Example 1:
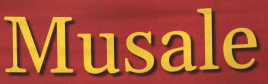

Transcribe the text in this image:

Musale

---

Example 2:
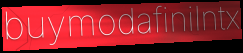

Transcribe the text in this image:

buymodafinilntx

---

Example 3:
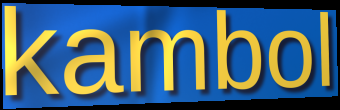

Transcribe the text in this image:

kambol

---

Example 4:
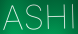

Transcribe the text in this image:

ASHI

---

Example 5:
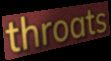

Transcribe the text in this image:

throats